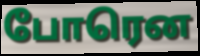
போரென